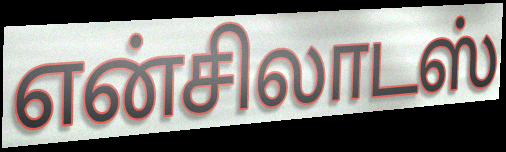
என்சிலாடஸ்